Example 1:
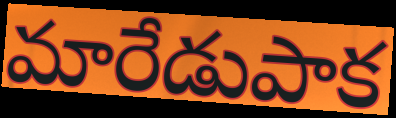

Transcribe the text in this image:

మారేడుపాక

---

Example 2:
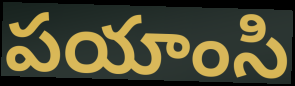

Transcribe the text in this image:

పయాంసి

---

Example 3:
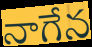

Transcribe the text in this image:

నాగేన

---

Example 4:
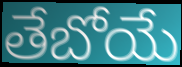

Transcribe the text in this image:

తేబోయే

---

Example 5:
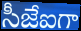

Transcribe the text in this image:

సీజేఐగా